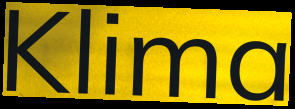
Klima